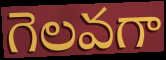
గెలవగా